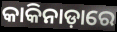
କାକିନାଡ଼ାରେ